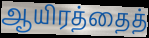
ஆயிரத்தைத்